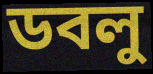
ডবলু